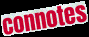
connotes